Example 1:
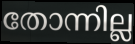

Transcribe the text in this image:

തോന്നില്ല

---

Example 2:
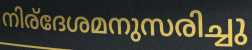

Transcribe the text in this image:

നിര്ദേശമനുസരിച്ചു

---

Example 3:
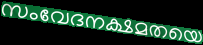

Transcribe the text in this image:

സംവേദനക്ഷമതയെ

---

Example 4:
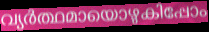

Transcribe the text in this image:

വ്യർത്ഥമായൊഴുകിപ്പോം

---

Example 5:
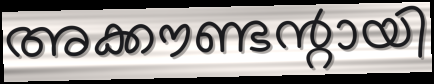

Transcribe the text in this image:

അക്കൗണ്ടന്റായി